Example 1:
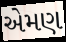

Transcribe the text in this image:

એમણ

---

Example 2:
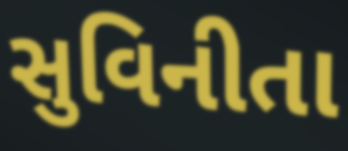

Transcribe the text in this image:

સુવિનીતા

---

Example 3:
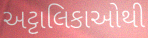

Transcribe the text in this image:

અટ્ટાલિકાઓથી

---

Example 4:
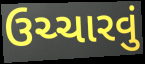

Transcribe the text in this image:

ઉચ્ચારવું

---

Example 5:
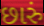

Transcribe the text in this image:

છારું